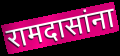
रामदासांना